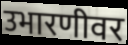
उभारणीवर